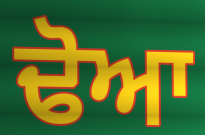
ਢੋਆ